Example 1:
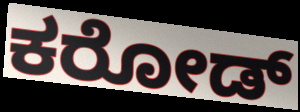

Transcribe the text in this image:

ಕರೋಡ್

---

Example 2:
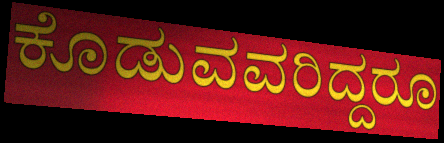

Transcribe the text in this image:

ಕೊಡುವವರಿದ್ದರೂ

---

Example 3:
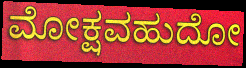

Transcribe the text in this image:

ಮೋಕ್ಷವಹುದೋ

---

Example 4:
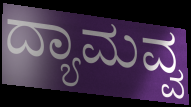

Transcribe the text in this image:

ದ್ಯಾಮವ್ವ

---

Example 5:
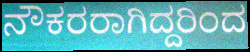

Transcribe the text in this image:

ನೌಕರರಾಗಿದ್ದರಿಂದ